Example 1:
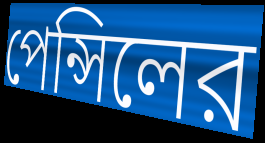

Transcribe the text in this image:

পেন্সিলের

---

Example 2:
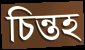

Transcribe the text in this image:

চিন্তহ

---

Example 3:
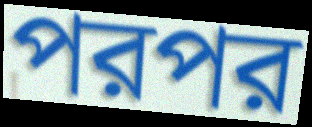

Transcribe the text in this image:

পরপর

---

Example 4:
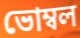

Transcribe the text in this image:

ভোম্বল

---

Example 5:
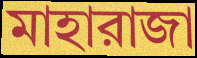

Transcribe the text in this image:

মাহারাজা